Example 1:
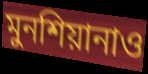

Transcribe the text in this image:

মুনশিয়ানাও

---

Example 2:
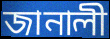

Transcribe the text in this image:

জানালী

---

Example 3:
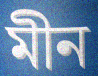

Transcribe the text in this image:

মীন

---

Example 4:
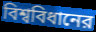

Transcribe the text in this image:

বিশ্ববিধানের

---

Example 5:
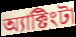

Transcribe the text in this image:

অ্যাক্টিংটা